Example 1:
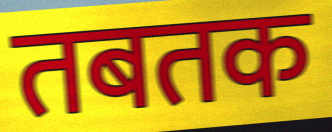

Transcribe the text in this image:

तबतक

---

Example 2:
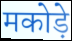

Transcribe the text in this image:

मकोड़े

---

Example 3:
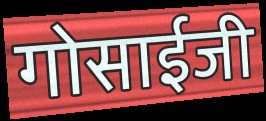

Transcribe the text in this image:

गोसाईजी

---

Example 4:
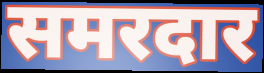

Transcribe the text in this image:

समरदार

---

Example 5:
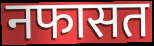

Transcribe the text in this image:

नफासत